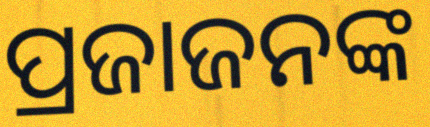
ପ୍ରଜାଜନଙ୍କ